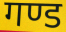
गण्ड